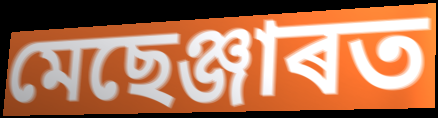
মেছেঞ্জাৰত